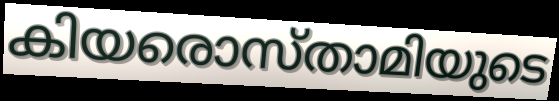
കിയരൊസ്താമിയുടെ